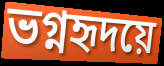
ভগ্নহৃদয়ে